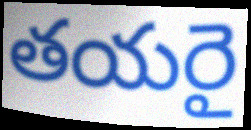
తయరై